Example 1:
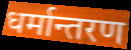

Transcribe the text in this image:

धर्मान्तरण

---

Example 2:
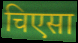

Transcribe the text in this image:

चिएसा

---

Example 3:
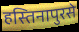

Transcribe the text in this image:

हस्तिनापुरसे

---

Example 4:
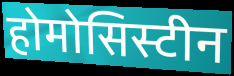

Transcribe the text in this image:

होमोसिस्टीन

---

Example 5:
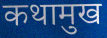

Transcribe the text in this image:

कथामुख